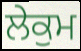
ਲੇਕੁਮ